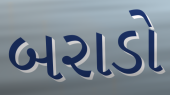
બરાડો